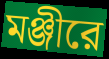
মঞ্জীরে